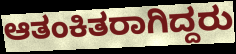
ಆತಂಕಿತರಾಗಿದ್ದರು